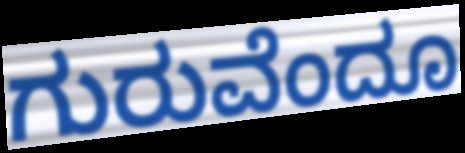
ಗುರುವೆಂದೂ